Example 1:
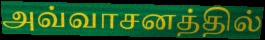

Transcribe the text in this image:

அவ்வாசனத்தில்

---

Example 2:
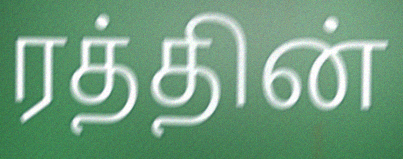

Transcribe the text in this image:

ரத்தின்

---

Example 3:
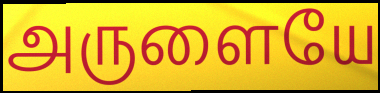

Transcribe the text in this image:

அருளையே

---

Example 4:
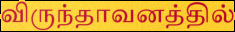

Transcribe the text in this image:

விருந்தாவனத்தில்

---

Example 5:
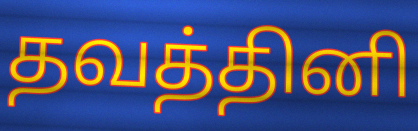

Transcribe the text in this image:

தவத்தினி